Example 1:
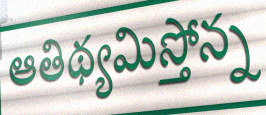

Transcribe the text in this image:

ఆతిథ్యమిస్తోన్న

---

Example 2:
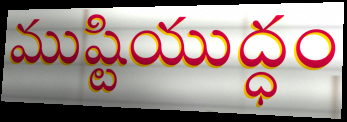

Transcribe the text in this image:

ముష్టియుద్ధం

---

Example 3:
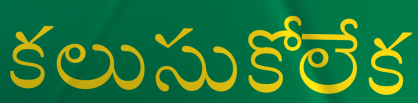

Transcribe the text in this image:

కలుసుకోలేక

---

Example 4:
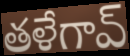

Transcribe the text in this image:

తళేగావ్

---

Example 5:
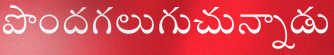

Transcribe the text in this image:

పొందగలుగుచున్నాడు